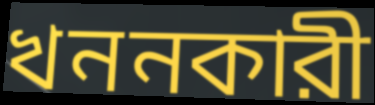
খননকারী